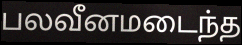
பலவீனமடைந்த